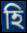
হি